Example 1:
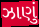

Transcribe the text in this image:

ઝાણું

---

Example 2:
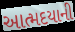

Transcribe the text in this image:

આત્મદયાની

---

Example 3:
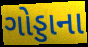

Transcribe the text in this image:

ગોડ્ડાના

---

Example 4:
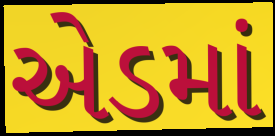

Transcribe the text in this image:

એડમાં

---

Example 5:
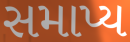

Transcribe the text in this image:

સમાપ્ય